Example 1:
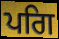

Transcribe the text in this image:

ਪਗਿ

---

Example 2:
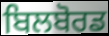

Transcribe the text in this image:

ਬਿਲਬੋਰਡ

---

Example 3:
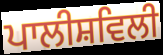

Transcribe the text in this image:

ਪਾਲੀਸ਼ਵਿਲੀ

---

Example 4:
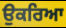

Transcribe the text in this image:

ਉਕਰਿਆ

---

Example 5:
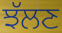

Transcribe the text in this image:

ਝੱਲਣ